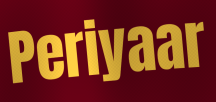
Periyaar